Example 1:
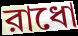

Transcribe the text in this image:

রাধো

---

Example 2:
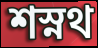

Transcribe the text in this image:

শস্নথ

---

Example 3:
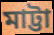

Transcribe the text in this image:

মাট্টা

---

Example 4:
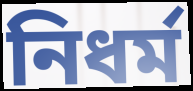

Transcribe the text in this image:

নিধর্ম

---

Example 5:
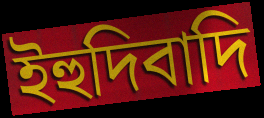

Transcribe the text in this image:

ইহুদিবাদি